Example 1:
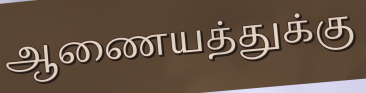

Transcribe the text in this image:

ஆணையத்துக்கு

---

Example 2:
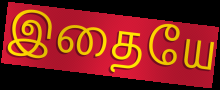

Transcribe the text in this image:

இதையே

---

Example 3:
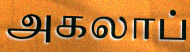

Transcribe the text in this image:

அகலாப்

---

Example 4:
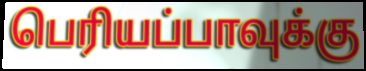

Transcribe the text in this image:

பெரியப்பாவுக்கு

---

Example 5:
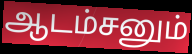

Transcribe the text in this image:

ஆடம்சனும்